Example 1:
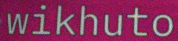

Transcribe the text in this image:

wikhuto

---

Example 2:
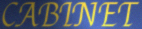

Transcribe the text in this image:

CABINET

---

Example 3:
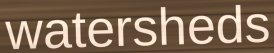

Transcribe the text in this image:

watersheds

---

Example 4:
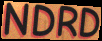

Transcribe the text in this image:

NDRD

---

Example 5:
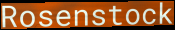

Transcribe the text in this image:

Rosenstock